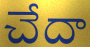
చేదా